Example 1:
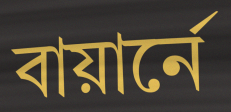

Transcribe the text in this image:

বায়ার্নে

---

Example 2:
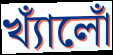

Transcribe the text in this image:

খ্যাঁলোঁ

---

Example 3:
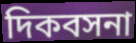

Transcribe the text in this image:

দিকবসনা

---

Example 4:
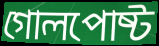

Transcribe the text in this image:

গোলপোষ্ট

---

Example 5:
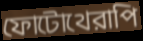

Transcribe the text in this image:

ফোটোথেরাপি